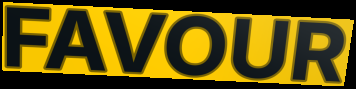
FAVOUR